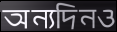
অন্যদিনও